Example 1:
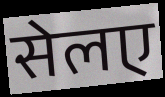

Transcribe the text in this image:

सेलए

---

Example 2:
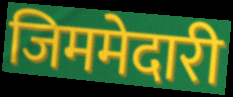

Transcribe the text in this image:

जिममेदारी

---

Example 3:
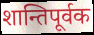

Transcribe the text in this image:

शान्तिपूर्वक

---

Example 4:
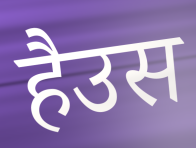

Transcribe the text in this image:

हैउस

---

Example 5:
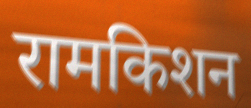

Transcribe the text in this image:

रामकिशन